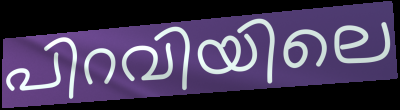
പിറവിയിലെ